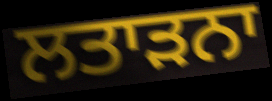
ਲਤਾੜਨਾ